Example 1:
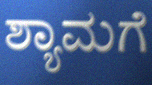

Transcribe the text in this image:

ಶ್ಯಾಮಗೆ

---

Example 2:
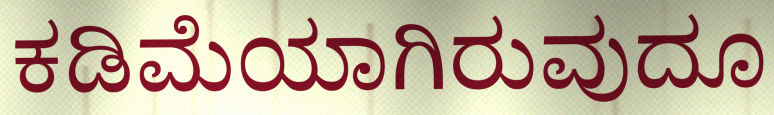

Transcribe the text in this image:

ಕಡಿಮೆಯಾಗಿರುವುದೂ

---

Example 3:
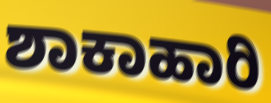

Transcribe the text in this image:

ಶಾಕಾಹಾರಿ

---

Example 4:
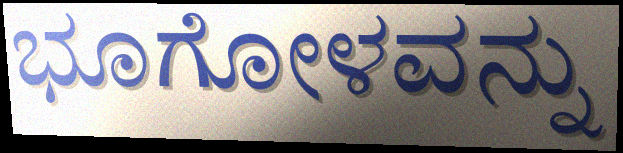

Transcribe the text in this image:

ಭೂಗೋಳವನ್ನು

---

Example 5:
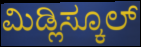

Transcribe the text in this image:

ಮಿಡ್ಲಿಸ್ಕೂಲ್